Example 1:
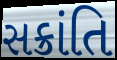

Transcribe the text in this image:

સક્રાંતિ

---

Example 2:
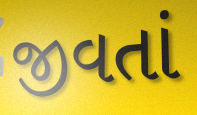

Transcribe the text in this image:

જીવતાં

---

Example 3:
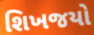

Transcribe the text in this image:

શિખજયો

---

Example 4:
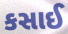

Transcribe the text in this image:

કસાઈ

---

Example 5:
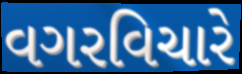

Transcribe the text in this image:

વગરવિચારે